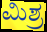
ಮಿಶ್ರ